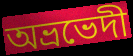
অভ্রভেদী